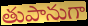
తుపానుగా